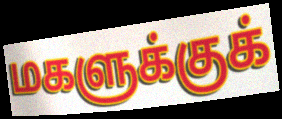
மகளுக்குக்